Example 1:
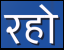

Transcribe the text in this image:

रहो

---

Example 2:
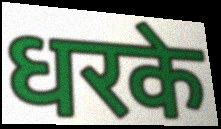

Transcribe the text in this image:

धरके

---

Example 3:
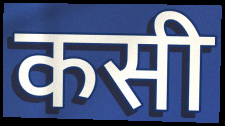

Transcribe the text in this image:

कसी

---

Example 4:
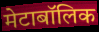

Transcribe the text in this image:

मेटाबॉलिक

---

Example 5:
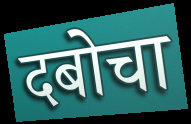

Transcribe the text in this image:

दबोचा